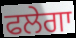
ਫਲੇਗਾ